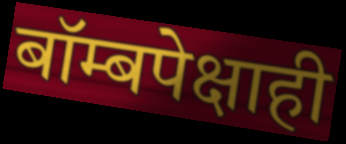
बॉम्बपेक्षाही